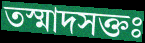
তস্মাদসক্তঃ